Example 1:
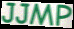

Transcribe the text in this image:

JJMP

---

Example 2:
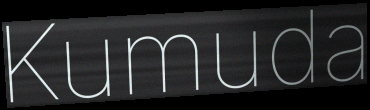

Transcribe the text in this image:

Kumuda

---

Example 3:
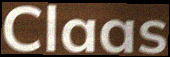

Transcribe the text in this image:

Claas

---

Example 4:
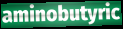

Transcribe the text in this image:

aminobutyric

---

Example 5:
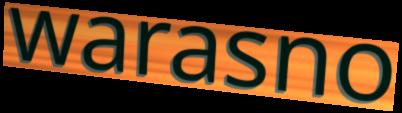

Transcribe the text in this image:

warasno